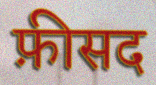
फ़ीसद